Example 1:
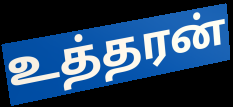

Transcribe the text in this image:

உத்தரன்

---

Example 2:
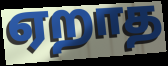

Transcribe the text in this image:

ஏறாத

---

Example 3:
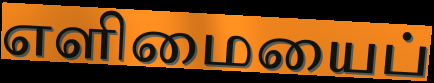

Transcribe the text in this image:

எளிமையைப்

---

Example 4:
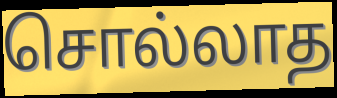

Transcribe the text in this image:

சொல்லாத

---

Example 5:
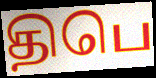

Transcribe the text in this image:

திபெ